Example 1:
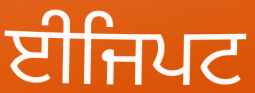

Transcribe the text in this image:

ਈਜਿਪਟ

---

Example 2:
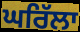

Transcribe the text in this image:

ਘਰਿੱਲਾ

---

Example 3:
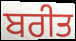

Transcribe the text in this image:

ਬਰੀਤ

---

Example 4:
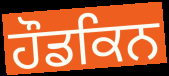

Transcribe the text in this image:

ਹੌਡਕਿਨ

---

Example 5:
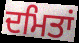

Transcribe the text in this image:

ਦਮਿਤਾਂ